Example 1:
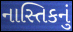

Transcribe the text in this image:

નાસ્તિકનું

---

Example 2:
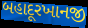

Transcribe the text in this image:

બહાદૂરખાનજી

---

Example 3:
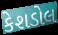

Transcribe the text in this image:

કેશડોલ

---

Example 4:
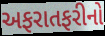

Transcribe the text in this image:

અફરાતફરીનો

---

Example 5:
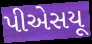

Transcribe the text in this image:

પીએસયૂ